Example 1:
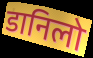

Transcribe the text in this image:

डानिलो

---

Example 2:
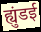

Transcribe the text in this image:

ह्युंडई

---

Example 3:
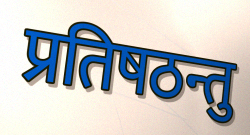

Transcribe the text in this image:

प्रतिषठन्तु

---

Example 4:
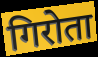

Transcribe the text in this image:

गिरोता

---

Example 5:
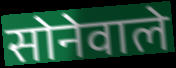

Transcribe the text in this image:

सोनेवाले